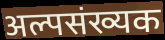
अल्पसंख्यक